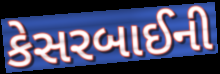
કેસરબાઈની